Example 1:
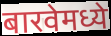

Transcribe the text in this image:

बारवेमध्ये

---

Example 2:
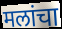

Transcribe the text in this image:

मलांचा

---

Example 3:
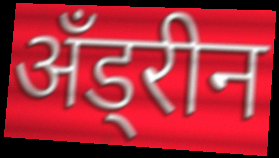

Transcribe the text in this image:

अँड्रीन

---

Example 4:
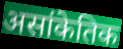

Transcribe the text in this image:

असांकेतिक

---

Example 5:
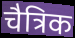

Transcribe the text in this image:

चैत्रिक